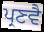
ਪ੍ਰਣਵੈ